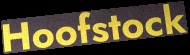
Hoofstock